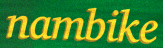
nambike